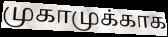
முகாமுக்காக